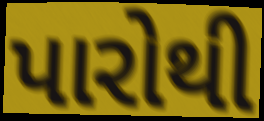
પારોથી